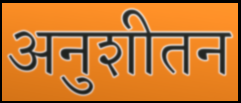
अनुशीतन